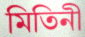
মিতিনী